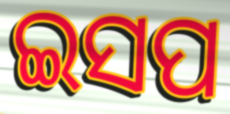
ଇସପ